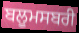
ਬਲੂਮਸਬਰੀ